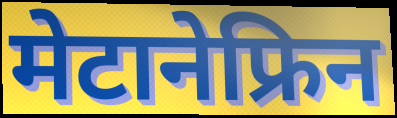
मेटानेफ्रिन